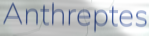
Anthreptes